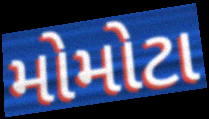
મોમોટા